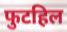
फुटहिल